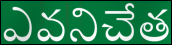
ఎవనిచేత